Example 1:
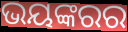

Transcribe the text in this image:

ଭୟଙ୍କରର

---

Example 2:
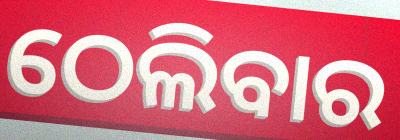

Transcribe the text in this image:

ଠେଲିବାର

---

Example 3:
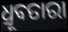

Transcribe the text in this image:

ଧ୍ରୂବତାରା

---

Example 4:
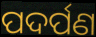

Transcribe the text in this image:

ପଦର୍ପଣ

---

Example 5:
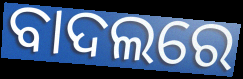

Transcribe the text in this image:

ବାଦଲରେ